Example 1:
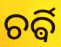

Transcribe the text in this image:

ଚର୍ଵି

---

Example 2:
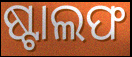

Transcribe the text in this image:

ଷ୍ଟାଲଫ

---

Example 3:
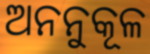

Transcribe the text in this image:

ଅନନୁକୂଳ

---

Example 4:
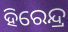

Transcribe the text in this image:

ହିରେନ୍ଦ୍ର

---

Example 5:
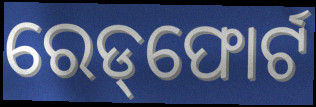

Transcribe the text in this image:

ରେଡ୍‌ଫୋର୍ଟ